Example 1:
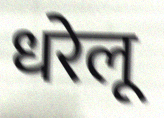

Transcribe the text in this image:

धरेलू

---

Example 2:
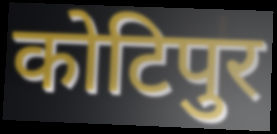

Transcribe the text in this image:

कोटिपुर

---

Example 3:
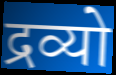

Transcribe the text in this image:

द्रव्यो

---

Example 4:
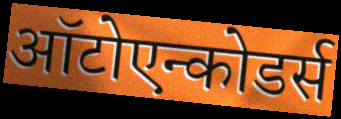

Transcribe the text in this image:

ऑटोएन्कोडर्स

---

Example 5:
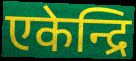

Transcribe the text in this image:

एकेन्द्रि